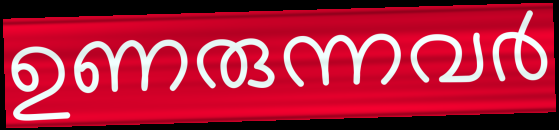
ഉണരുന്നവർ